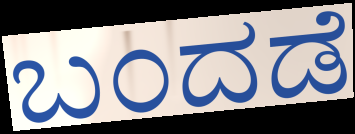
ಬಂದಡೆ